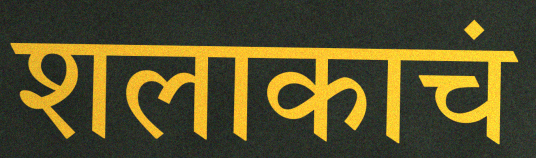
शलाकाचं